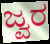
ಜ್ವರ